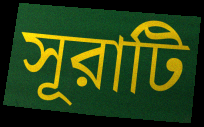
সূরাটি